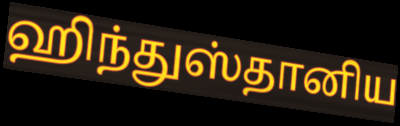
ஹிந்துஸ்தானிய